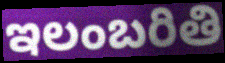
ఇలంబరితి